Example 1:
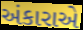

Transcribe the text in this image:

અંકારાએ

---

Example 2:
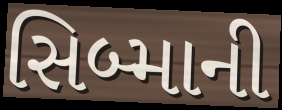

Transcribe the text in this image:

સિબ્માની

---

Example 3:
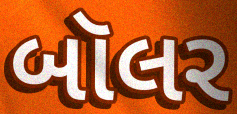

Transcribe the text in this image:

બૉલર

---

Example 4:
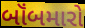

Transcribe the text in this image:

બૉંબમારો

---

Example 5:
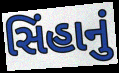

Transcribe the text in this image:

સિંહાનું